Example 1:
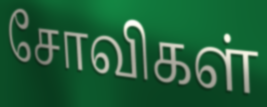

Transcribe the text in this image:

சோவிகள்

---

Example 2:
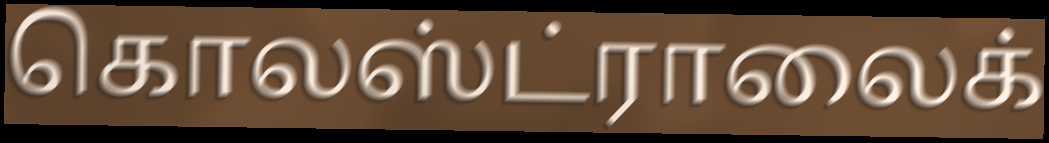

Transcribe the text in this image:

கொலஸ்ட்ராலைக்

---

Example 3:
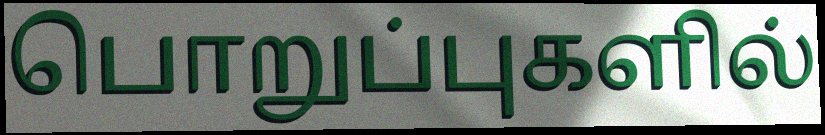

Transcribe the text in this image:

பொறுப்புகளில்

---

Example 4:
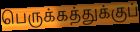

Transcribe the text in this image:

பெருக்கத்துக்குப்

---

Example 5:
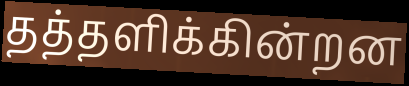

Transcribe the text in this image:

தத்தளிக்கின்றன